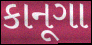
કાનૂગા